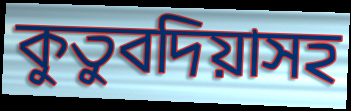
কুতুবদিয়াসহ